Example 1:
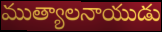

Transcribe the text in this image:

ముత్యాలనాయుడు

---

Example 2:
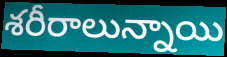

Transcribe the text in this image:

శరీరాలున్నాయి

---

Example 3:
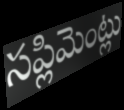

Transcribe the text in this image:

సప్లిమెంట్లు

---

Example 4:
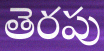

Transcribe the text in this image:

తెరపు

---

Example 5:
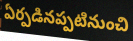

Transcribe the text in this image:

ఏర్పడినప్పటినుంచి